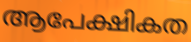
ആപേക്ഷികത